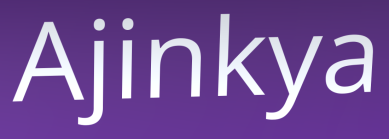
Ajinkya